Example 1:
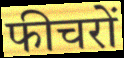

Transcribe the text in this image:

फीचरों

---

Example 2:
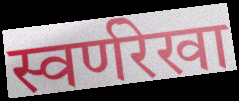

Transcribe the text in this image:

स्वर्णरेखा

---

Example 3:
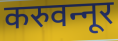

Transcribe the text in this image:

करुवन्नूर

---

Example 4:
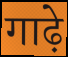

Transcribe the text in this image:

गाढ़े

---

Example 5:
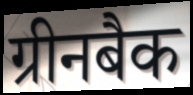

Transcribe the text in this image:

ग्रीनबैक